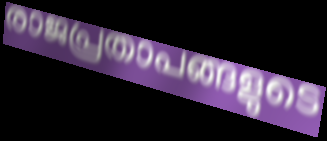
രാജപ്രതാപങ്ങളുടെ